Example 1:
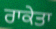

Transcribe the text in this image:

ਰਾਕੇਤਾ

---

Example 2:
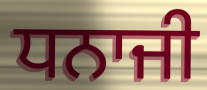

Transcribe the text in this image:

ਧਨਾਜੀ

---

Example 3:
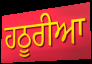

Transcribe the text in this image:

ਹਠੂਰੀਆ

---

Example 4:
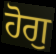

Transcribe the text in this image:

ਹੋਗੁ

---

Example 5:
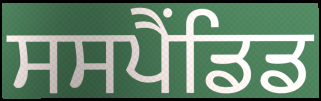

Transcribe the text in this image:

ਸਸਪੈਂਡਿਡ